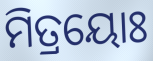
ମିତ୍ରୟୋଃ